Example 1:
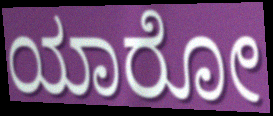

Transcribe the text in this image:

ಯಾರೋ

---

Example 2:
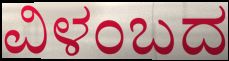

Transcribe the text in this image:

ವಿಳಂಬದ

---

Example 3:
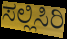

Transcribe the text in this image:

ಸಲ್ಲಿಸಿರಿ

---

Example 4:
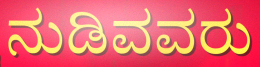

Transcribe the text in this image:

ನುಡಿವವರು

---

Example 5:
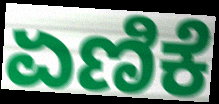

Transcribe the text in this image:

ಏಣಿಕೆ